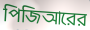
পিজিআরের